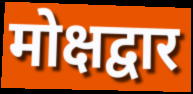
मोक्षद्वार